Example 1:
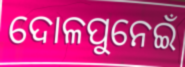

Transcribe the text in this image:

ଦୋଳପୁନେଇଁ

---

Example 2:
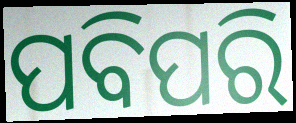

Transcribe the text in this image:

ପବିପରି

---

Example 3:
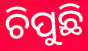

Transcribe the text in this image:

ଚିପୁଛି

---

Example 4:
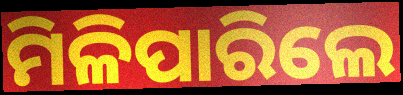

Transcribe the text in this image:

ମିଳିପାରିଲେ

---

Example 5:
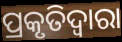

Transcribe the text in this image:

ପ୍ରକୃତିଦ୍ୱାରା